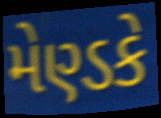
મેણ્ડકે